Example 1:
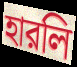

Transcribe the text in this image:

হারলি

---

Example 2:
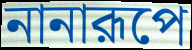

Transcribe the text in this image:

নানারূপে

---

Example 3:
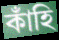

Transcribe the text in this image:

কাঁহি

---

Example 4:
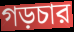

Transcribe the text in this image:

গড়চার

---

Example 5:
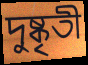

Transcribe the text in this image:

দুষ্কৃতী